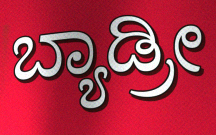
ಬ್ಯಾಡ್ರೀ